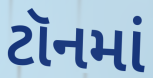
ટૉનમાં